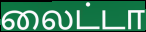
லைட்டா